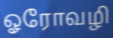
ஓரோவழி